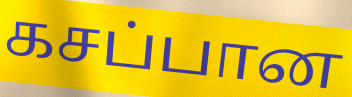
கசப்பான